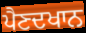
ਪੈਣਦਖਾਨ